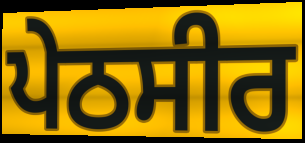
ਪੇਠਸੀਰ